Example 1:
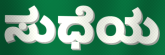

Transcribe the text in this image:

ಸುಧೆಯ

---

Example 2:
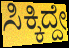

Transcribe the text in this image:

ಸಿಕ್ಕಿದ್ದೇ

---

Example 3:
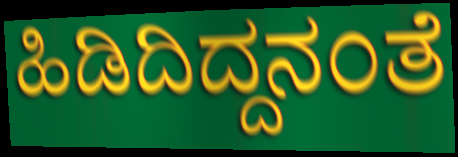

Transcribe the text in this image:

ಹಿಡಿದಿದ್ದನಂತೆ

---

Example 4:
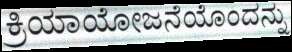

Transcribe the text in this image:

ಕ್ರಿಯಾಯೋಜನೆಯೊಂದನ್ನು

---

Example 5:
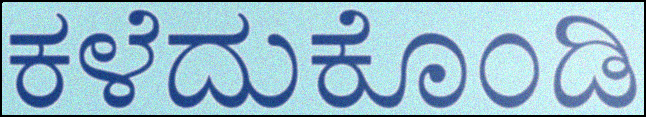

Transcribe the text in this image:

ಕಳೆದುಕೊಂಡಿ